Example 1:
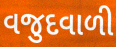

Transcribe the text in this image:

વજુદવાળી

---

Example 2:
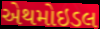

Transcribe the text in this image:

એથમોઇડલ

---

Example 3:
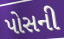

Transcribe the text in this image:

પોસની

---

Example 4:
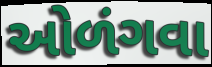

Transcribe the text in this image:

ઓળંગવા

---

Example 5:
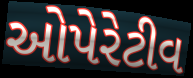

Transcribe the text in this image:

ઓપેરેટીવ